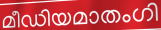
മീഡിയമാതംഗി